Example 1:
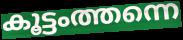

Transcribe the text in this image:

കൂട്ടംത്തന്നെ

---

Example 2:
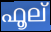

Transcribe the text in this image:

ഫൂല്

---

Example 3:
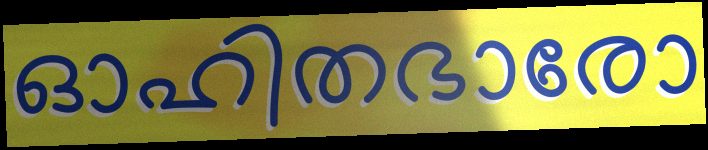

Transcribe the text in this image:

ഓഹിതഭാരോ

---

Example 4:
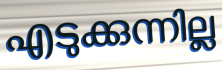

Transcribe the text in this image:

എടുക്കുന്നില്ല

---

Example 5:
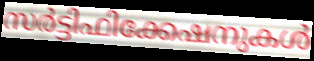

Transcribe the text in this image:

സർട്ടിഫിക്കേഷനുകൾ